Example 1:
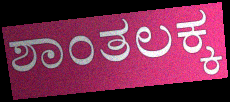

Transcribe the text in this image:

ಶಾಂತಲಕ್ಕ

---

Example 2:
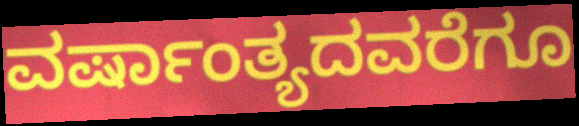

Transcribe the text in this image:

ವರ್ಷಾಂತ್ಯದವರೆಗೂ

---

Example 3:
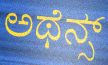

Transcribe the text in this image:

ಅಥೆನ್ಸ್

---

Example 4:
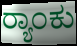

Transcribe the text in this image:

ರ್‍ಯಾಂಕು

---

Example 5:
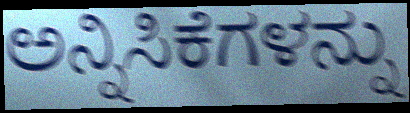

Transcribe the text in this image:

ಅನ್ನಿಸಿಕೆಗಳನ್ನು